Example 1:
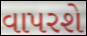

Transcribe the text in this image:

વાપરશે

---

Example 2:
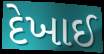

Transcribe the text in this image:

દેખાઈ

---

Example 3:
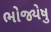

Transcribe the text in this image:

ભોજ્યેષુ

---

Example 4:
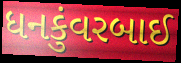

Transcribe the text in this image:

ધનકુંવરબાઈ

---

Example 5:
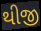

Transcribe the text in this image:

થીજી